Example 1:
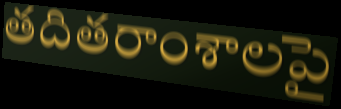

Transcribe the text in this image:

తదితరాంశాలపై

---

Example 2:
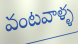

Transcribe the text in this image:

వంటవాళ్ళ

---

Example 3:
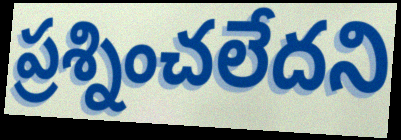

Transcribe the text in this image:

ప్రశ్నించలేదని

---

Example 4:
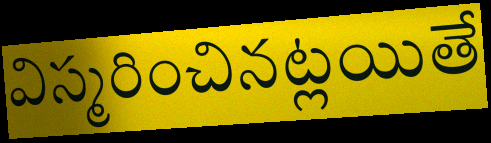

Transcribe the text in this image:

విస్మరించినట్లయితే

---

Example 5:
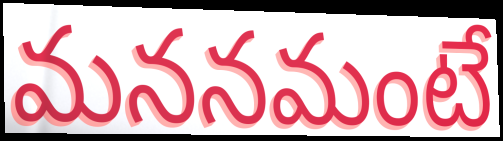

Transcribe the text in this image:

మననమంటే